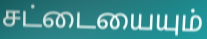
சட்டையையும்